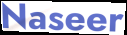
Naseer